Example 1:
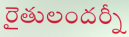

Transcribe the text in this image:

రైతులందర్నీ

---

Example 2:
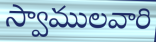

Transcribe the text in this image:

స్వాములవారి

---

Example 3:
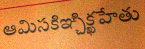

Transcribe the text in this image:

ఆమిసకిఞ్చిక్ఖహేతు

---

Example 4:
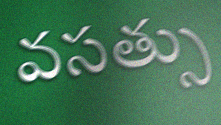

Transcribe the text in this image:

వసత్సు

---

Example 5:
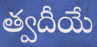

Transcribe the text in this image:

త్వదీయే